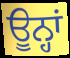
ਊਨ੍ਹਾਂ